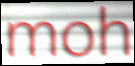
moh